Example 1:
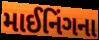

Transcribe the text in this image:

માઈનિંગના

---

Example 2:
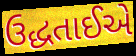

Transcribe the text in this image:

ઉદ્ધતાઈએ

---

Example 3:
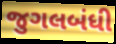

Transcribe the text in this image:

જુગલબંધી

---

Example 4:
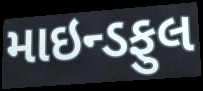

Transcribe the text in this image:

માઇન્ડફુલ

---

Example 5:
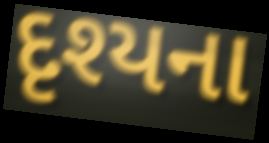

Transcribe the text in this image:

દૃશ્યના